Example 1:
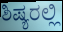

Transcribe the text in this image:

ಶಿಷ್ಯರಲ್ಲಿ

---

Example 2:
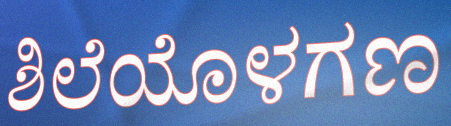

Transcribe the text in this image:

ಶಿಲೆಯೊಳಗಣ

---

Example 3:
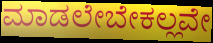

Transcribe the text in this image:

ಮಾಡಲೇಬೇಕಲ್ಲವೇ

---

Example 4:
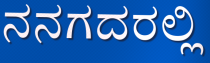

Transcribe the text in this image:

ನನಗದರಲ್ಲಿ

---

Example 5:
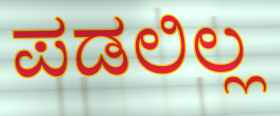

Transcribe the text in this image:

ಪಡಲಿಲ್ಲ